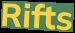
Rifts